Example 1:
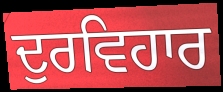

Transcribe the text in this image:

ਦੁਰਵਿਹਾਰ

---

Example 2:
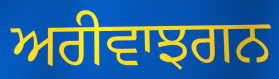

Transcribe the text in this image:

ਅਰੀਵਾਝਗਨ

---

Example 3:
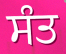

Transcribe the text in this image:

ਸੰਤ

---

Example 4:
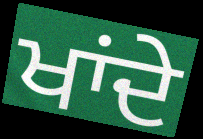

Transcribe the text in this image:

ਖਾਂਦੇ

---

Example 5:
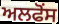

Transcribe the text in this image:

ਅਲਫੋਂਸ